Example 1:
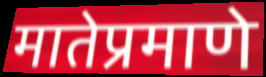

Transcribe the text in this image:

मातेप्रमाणे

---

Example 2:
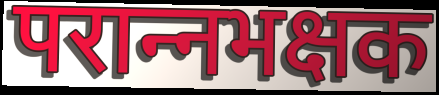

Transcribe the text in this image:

परान्नभक्षक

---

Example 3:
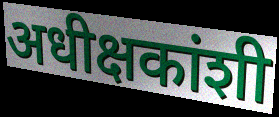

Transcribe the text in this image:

अधीक्षकांशी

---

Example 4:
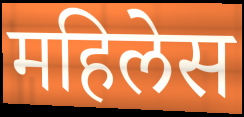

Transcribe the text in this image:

महिलेस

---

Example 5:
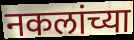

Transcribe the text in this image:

नकलांच्या